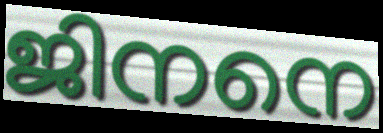
ജിനനെ